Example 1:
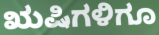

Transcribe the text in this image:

ಋಷಿಗಳಿಗೂ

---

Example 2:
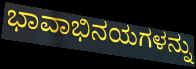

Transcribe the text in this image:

ಭಾವಾಭಿನಯಗಳನ್ನು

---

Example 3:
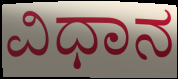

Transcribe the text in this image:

ವಿಧಾನ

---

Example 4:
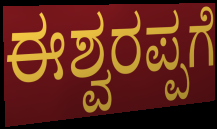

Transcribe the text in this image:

ಈಶ್ವರಪ್ಪಗೆ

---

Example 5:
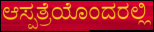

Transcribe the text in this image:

ಆಸ್ಪತ್ರೆಯೊಂದರಲ್ಲಿ